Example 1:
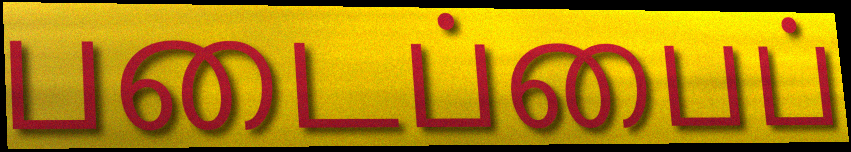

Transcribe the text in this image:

படைப்பைப்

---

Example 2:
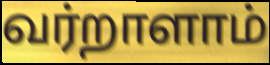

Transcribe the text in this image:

வர்றாளாம்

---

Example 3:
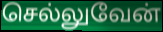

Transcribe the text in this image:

செல்லுவேன்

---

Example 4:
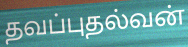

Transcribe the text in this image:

தவப்புதல்வன்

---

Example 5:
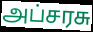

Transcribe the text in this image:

அப்சரசு